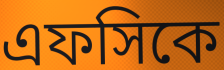
এফসিকে